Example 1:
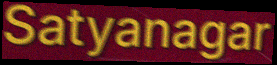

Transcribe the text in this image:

Satyanagar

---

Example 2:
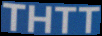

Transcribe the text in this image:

THTT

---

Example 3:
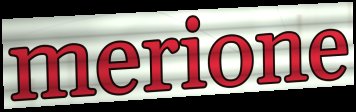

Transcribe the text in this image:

merione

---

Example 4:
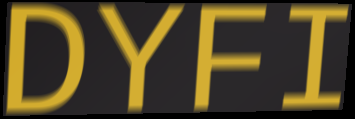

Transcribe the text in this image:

DYFI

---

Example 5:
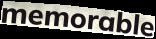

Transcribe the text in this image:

memorable